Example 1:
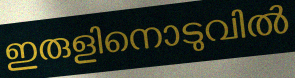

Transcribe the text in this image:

ഇരുളിനൊടുവിൽ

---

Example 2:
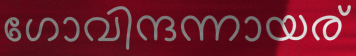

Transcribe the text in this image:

ഗോവിന്ദന്നായര്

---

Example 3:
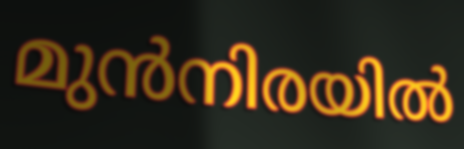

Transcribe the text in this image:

മുൻനിരയിൽ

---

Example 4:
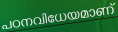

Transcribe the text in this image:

പഠനവിധേയമാണ്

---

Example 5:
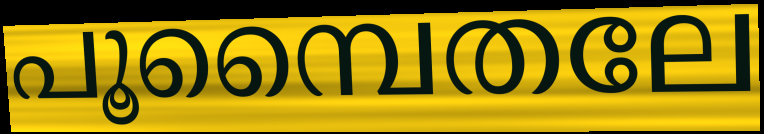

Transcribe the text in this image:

പൂമ്പൈതലേ